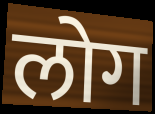
लोग